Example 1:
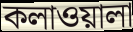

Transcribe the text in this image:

কলাওয়ালা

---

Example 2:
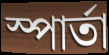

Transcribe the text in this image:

স্পার্তা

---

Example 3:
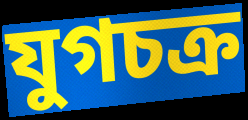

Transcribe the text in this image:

যুগচক্র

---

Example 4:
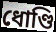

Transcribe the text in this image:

ধোণ্ডি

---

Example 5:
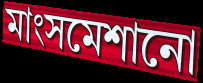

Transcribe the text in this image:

মাংসমেশানো